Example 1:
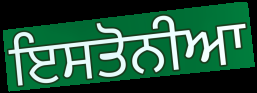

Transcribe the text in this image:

ਇਸਤੋਨੀਆ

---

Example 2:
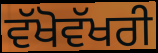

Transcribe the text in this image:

ਵੱਖੋਵੱਖਰੀ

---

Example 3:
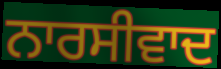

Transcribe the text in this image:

ਨਾਰਸੀਵਾਦ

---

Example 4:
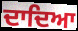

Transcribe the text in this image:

ਦਾਦਿਆ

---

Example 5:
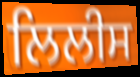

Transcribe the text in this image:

ਲਿਲੀਸ